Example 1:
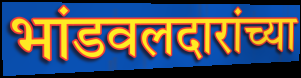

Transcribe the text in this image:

भांडवलदारांच्या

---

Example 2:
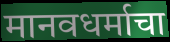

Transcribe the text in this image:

मानवधर्माचा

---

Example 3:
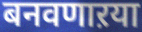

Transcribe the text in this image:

बनवणाऱया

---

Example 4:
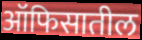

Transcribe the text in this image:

ऑफिसातील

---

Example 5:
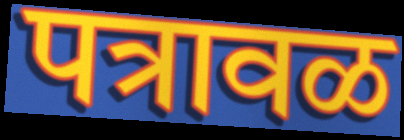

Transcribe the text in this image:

पत्रावळ